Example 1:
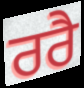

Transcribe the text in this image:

ਰਰੈ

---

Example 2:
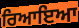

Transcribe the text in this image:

ਰਿਆਇਆ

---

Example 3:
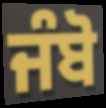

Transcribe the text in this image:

ਜੰਬੋ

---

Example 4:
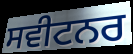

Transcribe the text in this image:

ਸਵੀਟਨਰ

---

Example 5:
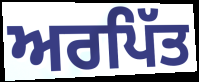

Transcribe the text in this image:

ਅਰਪਿੱਤ